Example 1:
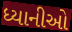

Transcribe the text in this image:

ધ્યાનીઓ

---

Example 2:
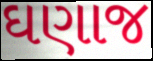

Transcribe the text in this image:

ઘણાજ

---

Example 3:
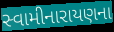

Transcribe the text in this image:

સ્વામીનારાયણના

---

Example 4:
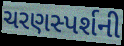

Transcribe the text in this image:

ચરણસ્પર્શની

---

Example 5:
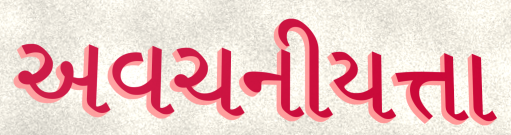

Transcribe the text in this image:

અવચનીયત્તા